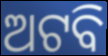
ଅଟବି